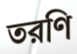
তরণি